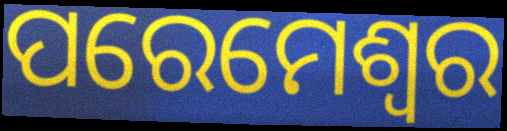
ପରେମେଶ୍ଵର